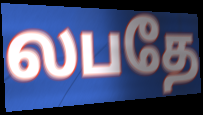
லபதே